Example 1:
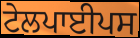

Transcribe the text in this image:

ਟੇਲਪਾਈਪਸ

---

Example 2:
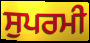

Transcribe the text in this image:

ਸੁਪਰਮੀ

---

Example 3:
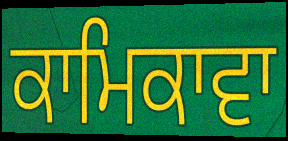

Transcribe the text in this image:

ਕਾਮਿਕਾਵਾ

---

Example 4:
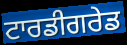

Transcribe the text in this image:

ਟਾਰਡੀਗਰੇਡ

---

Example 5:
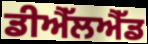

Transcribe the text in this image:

ਡੀਐੱਲਐੱਡ